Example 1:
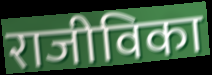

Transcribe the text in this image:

राजीविका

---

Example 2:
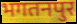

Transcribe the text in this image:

भगतनपुर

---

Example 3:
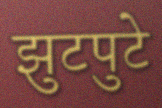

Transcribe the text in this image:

झुटपुटे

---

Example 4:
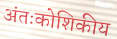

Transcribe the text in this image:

अंतःकोशिकीय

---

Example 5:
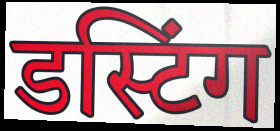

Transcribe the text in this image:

डस्टिंग